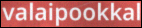
valaipookkal